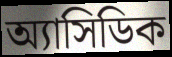
অ্যাসিডিক